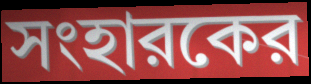
সংহারকের